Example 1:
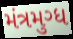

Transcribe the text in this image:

મંત્રમુગ્ધ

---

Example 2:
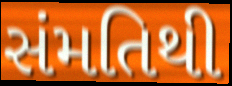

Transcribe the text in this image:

સંમતિથી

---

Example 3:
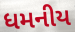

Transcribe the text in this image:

ધમનીય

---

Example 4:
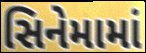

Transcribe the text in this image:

સિનેમામાં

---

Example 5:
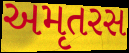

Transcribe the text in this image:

અમૃતરસ